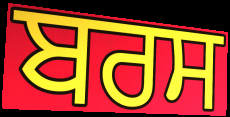
ਬਰਸ